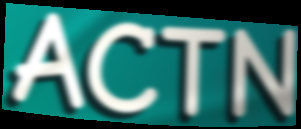
ACTN